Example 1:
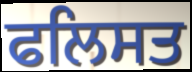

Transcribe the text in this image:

ਫਲਿਸਤ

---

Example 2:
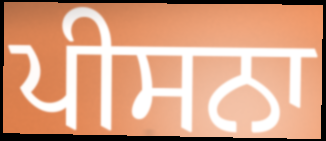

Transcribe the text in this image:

ਪੀਸਨਾ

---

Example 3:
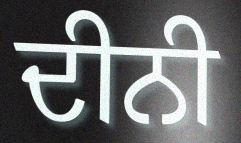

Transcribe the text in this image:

ਦੀਨੀ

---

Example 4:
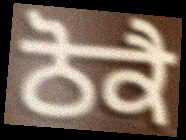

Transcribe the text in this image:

ਠੋਕੈ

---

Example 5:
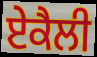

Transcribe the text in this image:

ਏਕੈਲੀ